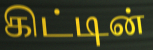
கிட்டின்